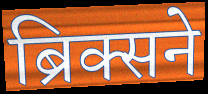
ब्रिक्सने